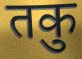
तकु